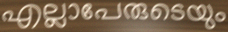
എല്ലാപേരുടെയും